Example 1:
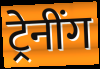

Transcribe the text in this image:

ट्रेनींग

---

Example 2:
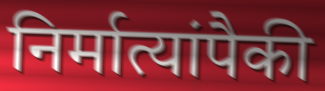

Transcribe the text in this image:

निर्मात्यांपैकी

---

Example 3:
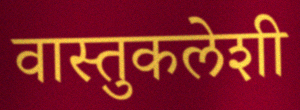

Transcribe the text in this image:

वास्तुकलेशी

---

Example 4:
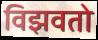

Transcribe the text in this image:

विझवतो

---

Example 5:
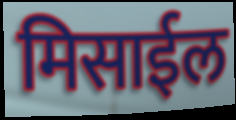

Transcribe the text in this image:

मिसाईल